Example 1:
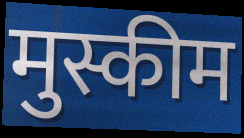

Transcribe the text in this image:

मुस्कीम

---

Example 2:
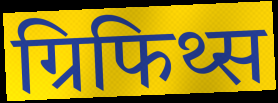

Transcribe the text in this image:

ग्रिफिथ्स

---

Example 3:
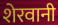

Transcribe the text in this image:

शेरवानी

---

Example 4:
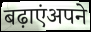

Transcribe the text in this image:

बढ़ाएंअपने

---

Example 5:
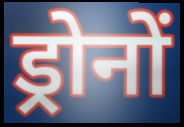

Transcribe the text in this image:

ड्रोनों